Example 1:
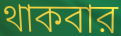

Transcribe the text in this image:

থাকবার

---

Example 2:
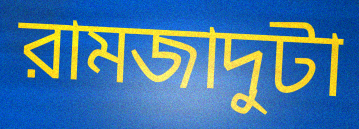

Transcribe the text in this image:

রামজাদুটা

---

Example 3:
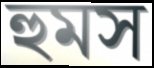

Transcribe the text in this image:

হুমস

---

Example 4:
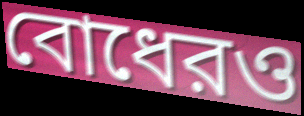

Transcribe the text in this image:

বোধেরও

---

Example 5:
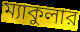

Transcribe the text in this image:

ম্যাকুলার